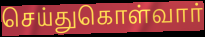
செய்துகொள்வார்